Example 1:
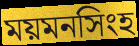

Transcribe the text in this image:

ময়মনসিংহ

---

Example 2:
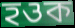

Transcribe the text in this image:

হওক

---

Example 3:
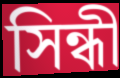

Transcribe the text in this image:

সিন্ধী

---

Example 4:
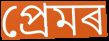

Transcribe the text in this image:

প্ৰেমৰ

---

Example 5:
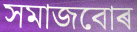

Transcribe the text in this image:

সমাজবোৰ